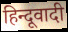
हिन्दूवादी